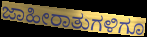
ಜಾಹೀರಾತುಗಳಿಗೂ